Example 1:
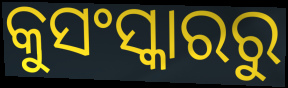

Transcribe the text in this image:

କୁସଂସ୍କାରରୁ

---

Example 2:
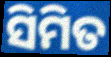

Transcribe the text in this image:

ସିମିତ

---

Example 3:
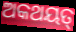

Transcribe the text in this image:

ଅକଥୟତ୍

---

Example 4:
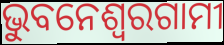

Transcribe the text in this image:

ଭୁବନେଶ୍ୱରଗାମୀ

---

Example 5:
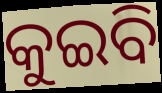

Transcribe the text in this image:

କୁଇବି